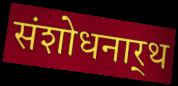
संशोधनार्थ